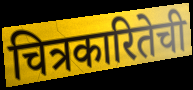
चित्रकारितेची